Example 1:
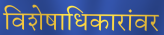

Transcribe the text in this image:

विशेषाधिकारांवर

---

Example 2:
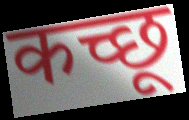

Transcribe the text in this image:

कच्छू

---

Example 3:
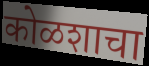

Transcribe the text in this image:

कोळशाचा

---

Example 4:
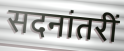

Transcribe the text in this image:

सदनांतरीं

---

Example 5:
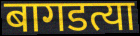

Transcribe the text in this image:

बागडत्या